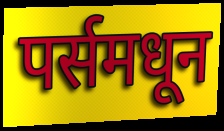
पर्समधून